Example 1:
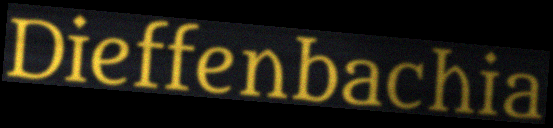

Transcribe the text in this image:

Dieffenbachia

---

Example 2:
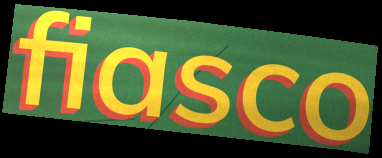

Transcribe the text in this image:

fiasco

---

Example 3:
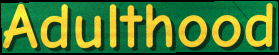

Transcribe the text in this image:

Adulthood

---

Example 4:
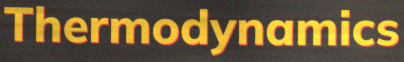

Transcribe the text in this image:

Thermodynamics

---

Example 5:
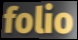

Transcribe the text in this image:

folio